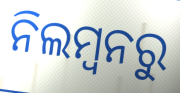
ନିଲମ୍ବନରୁ